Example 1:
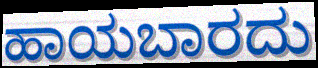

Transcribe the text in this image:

ಹಾಯಬಾರದು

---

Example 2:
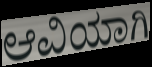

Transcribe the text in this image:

ಆವಿಯಾಗಿ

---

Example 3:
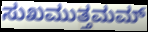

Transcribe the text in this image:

ಸುಖಮುತ್ತಮಮ್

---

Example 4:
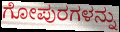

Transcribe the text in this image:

ಗೋಪುರಗಳನ್ನು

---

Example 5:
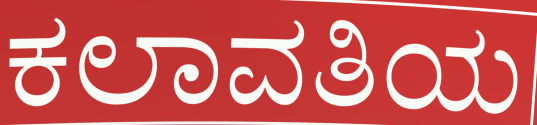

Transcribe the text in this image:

ಕಲಾವತಿಯ